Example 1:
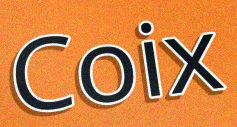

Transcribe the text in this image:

Coix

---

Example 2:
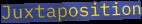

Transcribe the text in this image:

Juxtaposition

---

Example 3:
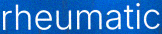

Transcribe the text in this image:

rheumatic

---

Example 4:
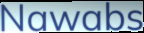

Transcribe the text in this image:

Nawabs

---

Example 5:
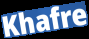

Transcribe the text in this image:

Khafre